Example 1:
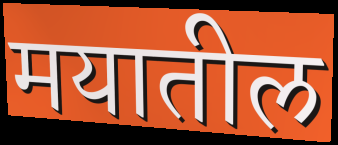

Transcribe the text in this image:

मयातील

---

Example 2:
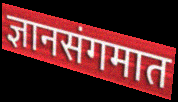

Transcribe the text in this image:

ज्ञानसंगमात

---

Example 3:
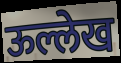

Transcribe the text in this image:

ऊल्लेख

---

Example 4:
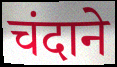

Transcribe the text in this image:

चंदाने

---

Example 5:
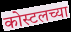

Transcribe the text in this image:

कोस्टलच्या